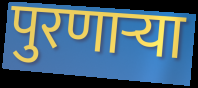
पुरणाऱ्या